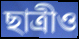
ছাত্রীও